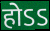
होऽऽ